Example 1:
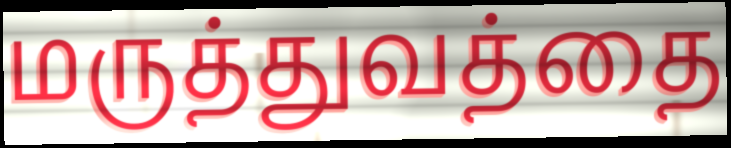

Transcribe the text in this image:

மருத்துவத்தை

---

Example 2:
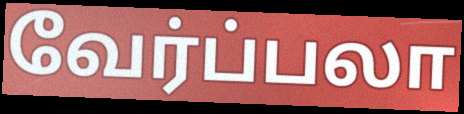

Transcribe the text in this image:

வேர்ப்பலா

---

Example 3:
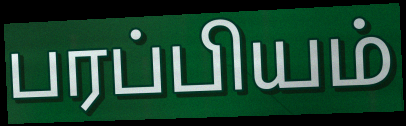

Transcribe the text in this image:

பரப்பியம்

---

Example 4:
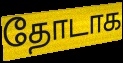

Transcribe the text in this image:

தோடாக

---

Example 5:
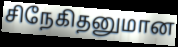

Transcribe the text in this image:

சிநேகிதனுமான